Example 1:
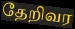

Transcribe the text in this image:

தேறிவர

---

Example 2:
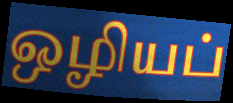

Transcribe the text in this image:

ஒழியப்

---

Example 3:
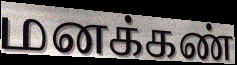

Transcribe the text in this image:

மனக்கண்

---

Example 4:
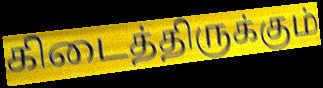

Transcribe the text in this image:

கிடைத்திருக்கும்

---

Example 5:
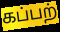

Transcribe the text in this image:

கப்பற்